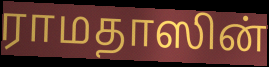
ராமதாஸின்